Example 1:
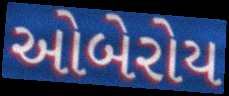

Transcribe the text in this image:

ઓબેરોય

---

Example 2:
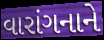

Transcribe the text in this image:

વારાંગનાને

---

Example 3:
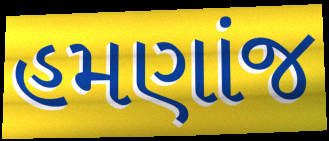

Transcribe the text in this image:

હમણાંજ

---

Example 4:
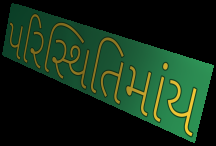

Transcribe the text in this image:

પરિસ્થિતિમાંય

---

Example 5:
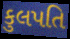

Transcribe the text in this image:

કુલપતિ